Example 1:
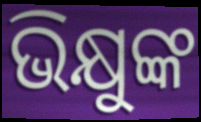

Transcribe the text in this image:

ଭିକ୍ଷୁଙ୍କ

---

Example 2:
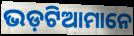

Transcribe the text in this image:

ଭଡ଼ଟିଆମାନେ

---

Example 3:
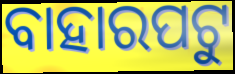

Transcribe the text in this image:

ବାହାରପଟୁ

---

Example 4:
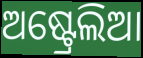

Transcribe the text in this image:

ଅଷ୍ଟ୍ରେଲିଆ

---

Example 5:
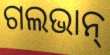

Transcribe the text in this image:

ଗଲଭାନ୍